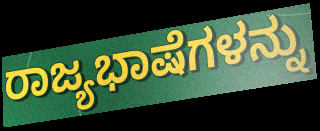
ರಾಜ್ಯಭಾಷೆಗಳನ್ನು